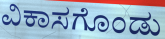
ವಿಕಾಸಗೊಂಡು